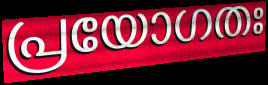
പ്രയോഗതഃ